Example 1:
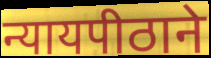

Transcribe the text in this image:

न्यायपीठाने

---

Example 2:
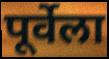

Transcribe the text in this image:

पूर्वेला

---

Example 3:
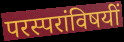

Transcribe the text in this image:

परस्परांविषयीं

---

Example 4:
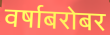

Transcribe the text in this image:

वर्षाबरोबर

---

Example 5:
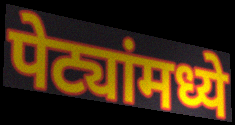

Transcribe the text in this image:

पेट्यांमध्ये